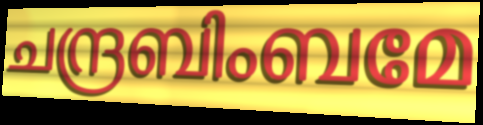
ചന്ദ്രബിംബമേ